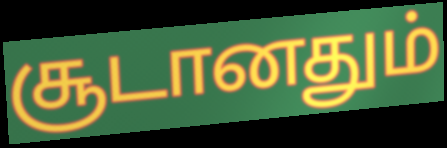
சூடானதும்